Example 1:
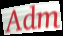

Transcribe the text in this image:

Adm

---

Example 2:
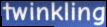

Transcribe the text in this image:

twinkling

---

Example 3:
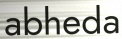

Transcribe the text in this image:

abheda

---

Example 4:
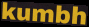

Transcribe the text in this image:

kumbh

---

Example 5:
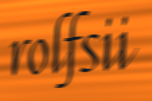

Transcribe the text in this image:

rolfsii